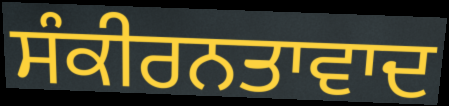
ਸੰਕੀਰਨਤਾਵਾਦ